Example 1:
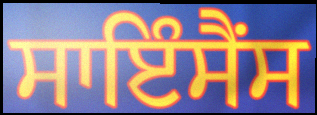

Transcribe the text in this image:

ਸਾਇੰਸੈਂਸ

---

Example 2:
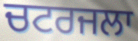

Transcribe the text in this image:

ਚਟਰਜਲਾ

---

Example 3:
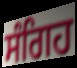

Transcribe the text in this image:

ਸੰਗਿਹ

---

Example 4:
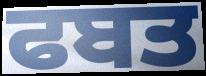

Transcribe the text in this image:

ਫਬਤ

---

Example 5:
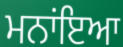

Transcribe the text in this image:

ਮਨਾਂਇਆ